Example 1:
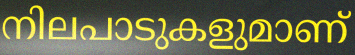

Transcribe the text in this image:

നിലപാടുകളുമാണ്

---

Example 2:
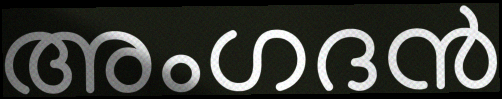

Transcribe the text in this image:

അംഗദൻ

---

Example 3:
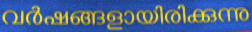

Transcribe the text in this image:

വർഷങ്ങളായിരിക്കുന്നു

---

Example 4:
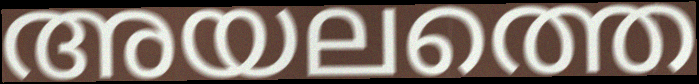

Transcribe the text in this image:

അയലത്തെ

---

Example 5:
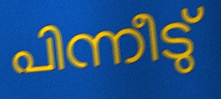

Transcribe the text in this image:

പിന്നീടു്